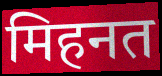
मिहनत